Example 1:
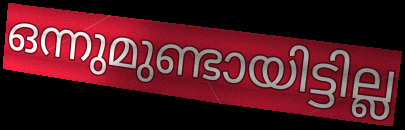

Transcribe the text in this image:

ഒന്നുമുണ്ടായിട്ടില്ല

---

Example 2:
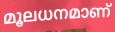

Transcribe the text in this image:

മൂലധനമാണ്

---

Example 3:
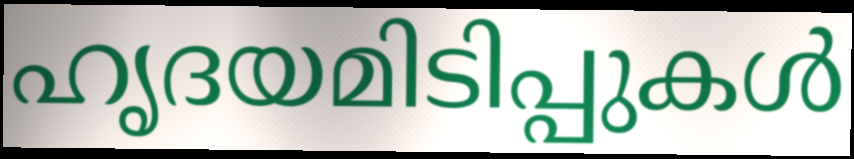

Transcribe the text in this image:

ഹൃദയമിടിപ്പുകൾ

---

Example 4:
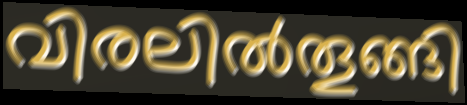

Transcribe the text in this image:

വിരലിൽതൂങ്ങി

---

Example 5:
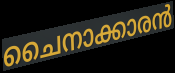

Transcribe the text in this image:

ചൈനാക്കാരൻ